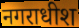
नगराधीश